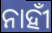
ନାହୀଁ